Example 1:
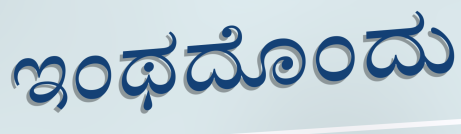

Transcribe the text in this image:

ಇಂಥದೊಂದು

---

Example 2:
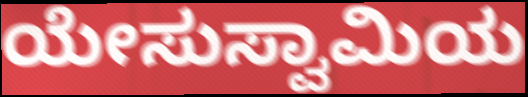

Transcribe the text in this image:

ಯೇಸುಸ್ವಾಮಿಯ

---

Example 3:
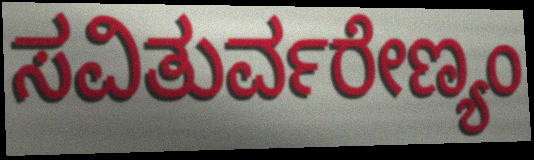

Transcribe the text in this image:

ಸವಿತುರ್ವರೇಣ್ಯಂ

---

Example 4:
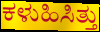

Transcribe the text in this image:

ಕಳುಹಿಸಿತ್ತು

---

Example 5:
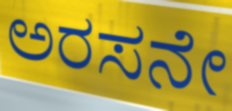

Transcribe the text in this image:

ಅರಸನೇ